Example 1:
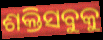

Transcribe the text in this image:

ଶକ୍ତିସବୁକୁ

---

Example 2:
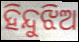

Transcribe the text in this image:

ହିନ୍ଦୁଝିଅ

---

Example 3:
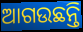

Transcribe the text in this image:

ଆଗଉଛନ୍ତି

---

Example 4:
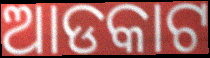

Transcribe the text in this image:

ଆଡକାଟ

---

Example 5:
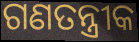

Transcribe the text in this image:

ଗଣତନ୍ତ୍ରୀକ